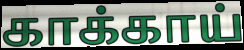
காக்காய்